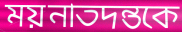
ময়নাতদন্তকে